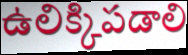
ఉలిక్కిపడాలి